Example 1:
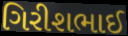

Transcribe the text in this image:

ગિરીશભાઈ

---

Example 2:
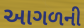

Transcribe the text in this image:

આગળની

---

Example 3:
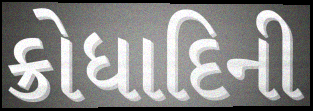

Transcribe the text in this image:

ક્રોધાદિની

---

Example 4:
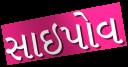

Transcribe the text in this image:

સાઇપોવ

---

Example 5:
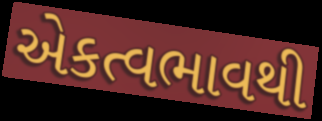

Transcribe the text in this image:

એકત્વભાવથી